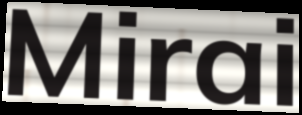
Mirai